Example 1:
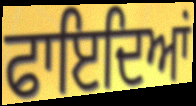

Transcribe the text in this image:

ਫਾਇਦਿਆਂ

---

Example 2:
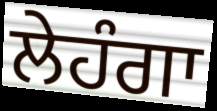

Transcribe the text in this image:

ਲੇਹੰਗਾ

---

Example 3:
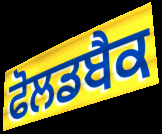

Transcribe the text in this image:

ਫੋਲਡਬੈਕ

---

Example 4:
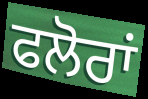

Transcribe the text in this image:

ਫਲੋਰਾਂ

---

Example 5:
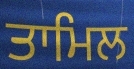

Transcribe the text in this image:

ਤਾਮਿਲ